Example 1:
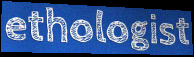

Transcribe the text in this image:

ethologist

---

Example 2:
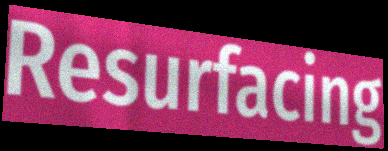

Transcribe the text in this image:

Resurfacing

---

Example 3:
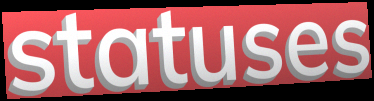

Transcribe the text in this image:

statuses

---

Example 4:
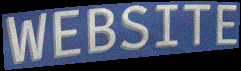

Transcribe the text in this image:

WEBSITE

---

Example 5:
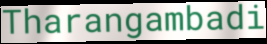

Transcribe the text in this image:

Tharangambadi